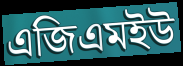
এজিএমইউ